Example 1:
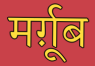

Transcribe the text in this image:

मर्ग़ूब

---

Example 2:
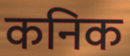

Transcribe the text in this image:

कनिक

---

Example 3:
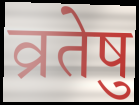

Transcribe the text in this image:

व्रतेषु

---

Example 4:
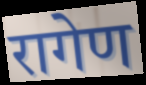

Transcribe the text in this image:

रागेण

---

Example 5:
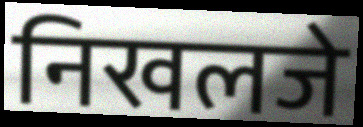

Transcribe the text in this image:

निखलजे